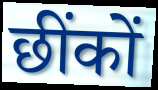
छींकों